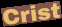
Crist